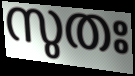
സുതഃ